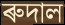
ৰুদাল